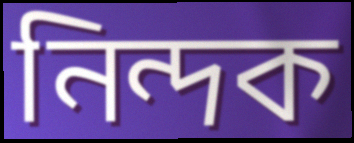
নিন্দক